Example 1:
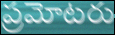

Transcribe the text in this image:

ప్రమోటరు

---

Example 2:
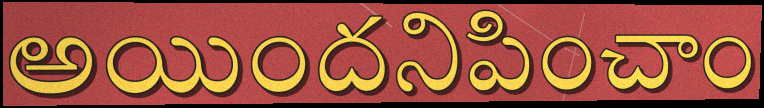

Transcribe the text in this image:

అయిందనిపించాం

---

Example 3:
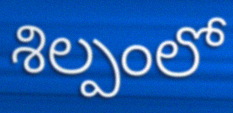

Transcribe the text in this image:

శిల్పంలో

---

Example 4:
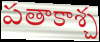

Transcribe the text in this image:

పతాకాశ్చ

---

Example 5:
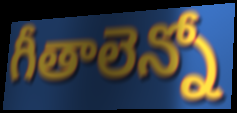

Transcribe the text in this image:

గీతాలెన్నో